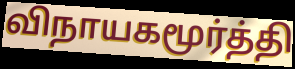
விநாயகமூர்த்தி